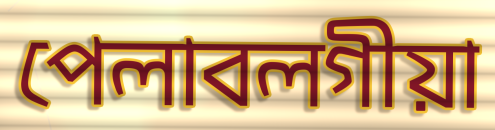
পেলাবলগীয়া